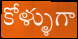
కోళ్ళుగా